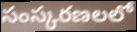
సంస్కరణలలో